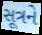
સૂત્રને